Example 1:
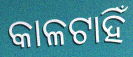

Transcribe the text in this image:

କାଳଟାହିଁ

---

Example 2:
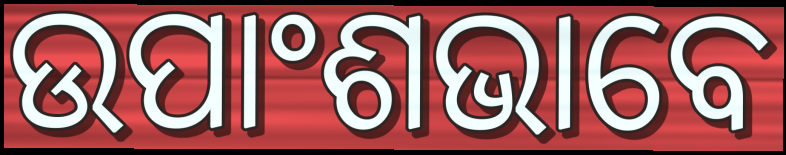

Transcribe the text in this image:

ଉପାଂଶଭାବେ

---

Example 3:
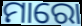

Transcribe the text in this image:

ମାରୋ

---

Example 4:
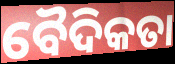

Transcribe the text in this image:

ବୈଦିକତା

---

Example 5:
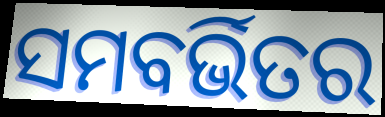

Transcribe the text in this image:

ସମବର୍ଭିତର